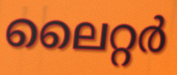
ലൈറ്റർ